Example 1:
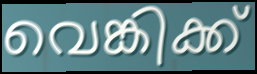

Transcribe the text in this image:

വെങ്കിക്ക്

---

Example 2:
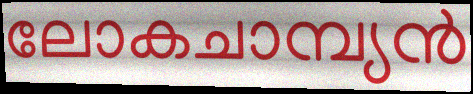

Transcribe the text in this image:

ലോകചാമ്പ്യൻ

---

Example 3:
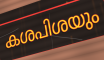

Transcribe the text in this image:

കശപിശയും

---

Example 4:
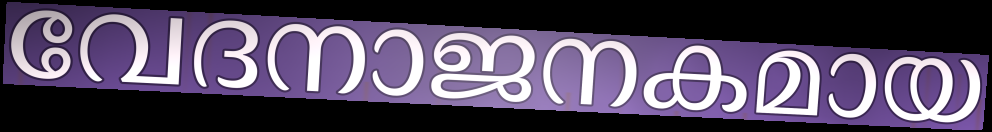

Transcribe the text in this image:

വേദനാജനകമായ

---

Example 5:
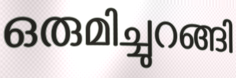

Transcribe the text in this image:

ഒരുമിച്ചുറങ്ങി